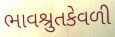
ભાવશ્રુતકેવળી